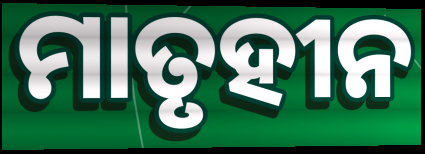
ମାତୃହୀନ